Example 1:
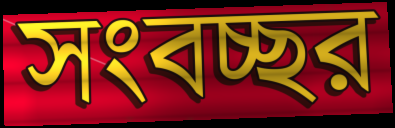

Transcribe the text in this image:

সংবচ্ছর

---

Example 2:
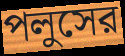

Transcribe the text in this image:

পলুসের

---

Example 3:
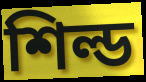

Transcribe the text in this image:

শিল্ড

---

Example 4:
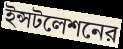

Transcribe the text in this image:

ইন্সটলেশনের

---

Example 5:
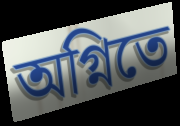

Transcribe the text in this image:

অগ্নিতে